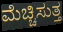
ಮೆಚ್ಚಿಸುತ್ತ